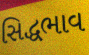
સિદ્ધભાવ